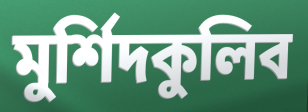
মুর্শিদকুলিব